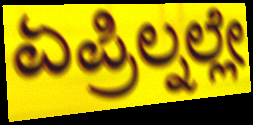
ಏಪ್ರಿಲ್ನಲ್ಲೇ